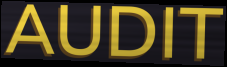
AUDIT